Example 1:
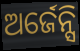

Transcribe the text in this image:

ଅର୍ଜେନ୍ସି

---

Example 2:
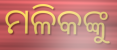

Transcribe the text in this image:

ମଳିକଙ୍କୁ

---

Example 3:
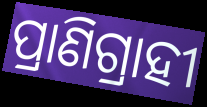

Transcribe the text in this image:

ପ୍ରାଣିଗ୍ରାହୀ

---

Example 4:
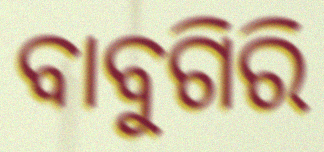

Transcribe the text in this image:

ବାବୁଗିରି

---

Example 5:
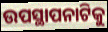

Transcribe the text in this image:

ଉପସ୍ଥାପନାଟିକୁ